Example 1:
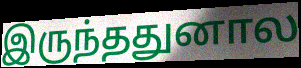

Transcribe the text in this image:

இருந்ததுனால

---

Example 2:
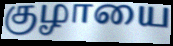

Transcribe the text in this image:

குழாயை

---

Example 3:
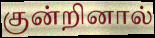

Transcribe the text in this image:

குன்றினால்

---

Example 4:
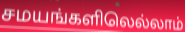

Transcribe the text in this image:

சமயங்களிலெல்லாம்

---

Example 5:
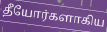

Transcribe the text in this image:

தீயோர்களாகிய